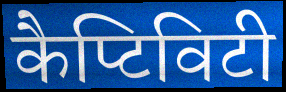
कैप्टिविटी